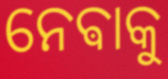
ନେଵାକୁ